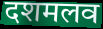
दशमलव